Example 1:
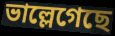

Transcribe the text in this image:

ভাল্লেগেছে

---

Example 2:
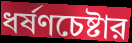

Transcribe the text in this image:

ধর্ষণচেষ্টার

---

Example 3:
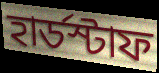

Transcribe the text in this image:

হার্ডস্টাফ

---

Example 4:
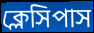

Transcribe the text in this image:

ক্লেসিপাস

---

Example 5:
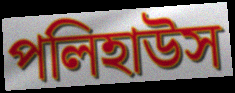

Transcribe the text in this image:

পলিহাউস